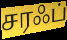
சரஃப்